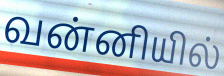
வன்னியில்